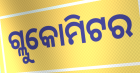
ଗ୍ଲୁକୋମିଟର